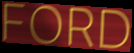
FORD